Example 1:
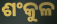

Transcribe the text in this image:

ଶଂକୁଳ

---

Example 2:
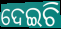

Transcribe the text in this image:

ଦେଇଚି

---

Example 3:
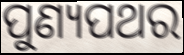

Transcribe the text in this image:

ପୁଣ୍ୟପଥର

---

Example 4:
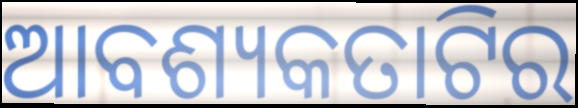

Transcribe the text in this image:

ଆବଶ୍ୟକତାଟିର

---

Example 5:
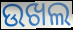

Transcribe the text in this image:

ଉଖଲ